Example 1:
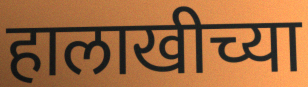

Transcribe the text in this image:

हालाखीच्या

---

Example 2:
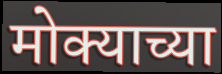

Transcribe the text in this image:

मोक्याच्या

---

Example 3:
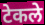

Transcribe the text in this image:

टेकले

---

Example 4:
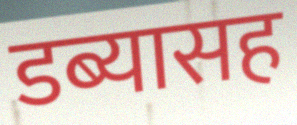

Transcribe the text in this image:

डब्यासह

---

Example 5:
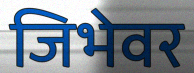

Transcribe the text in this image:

जिभेवर